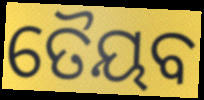
ତୈୟବ